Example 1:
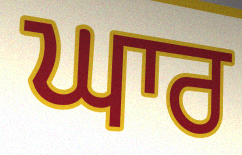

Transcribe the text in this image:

ਘਾਰ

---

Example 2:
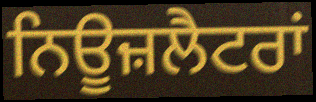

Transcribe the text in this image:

ਨਿਊਜ਼ਲੈਟਰਾਂ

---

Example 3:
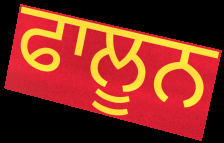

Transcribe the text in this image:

ਫਾਲੂਨ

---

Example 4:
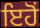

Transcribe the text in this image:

ਇਹੋਂ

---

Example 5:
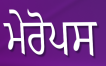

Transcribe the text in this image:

ਮੇਰੋਪਸ